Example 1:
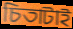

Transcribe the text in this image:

চিতাটাই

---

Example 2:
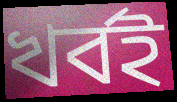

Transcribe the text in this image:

খর্বই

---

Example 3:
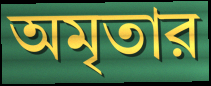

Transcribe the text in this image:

অমৃতার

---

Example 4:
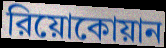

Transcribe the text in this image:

রিয়োকোয়ান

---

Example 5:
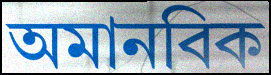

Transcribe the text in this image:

অমানবিক